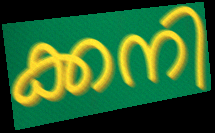
ക്കനി